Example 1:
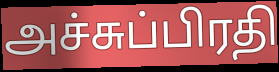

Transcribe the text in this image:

அச்சுப்பிரதி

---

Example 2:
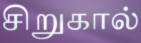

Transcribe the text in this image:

சிறுகால்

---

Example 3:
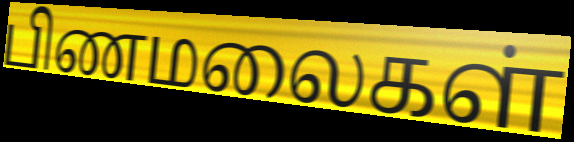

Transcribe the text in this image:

பிணமலைகள்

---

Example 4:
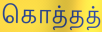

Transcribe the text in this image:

கொத்தத்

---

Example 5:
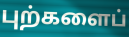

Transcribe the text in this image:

புற்களைப்